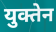
युक्तेन